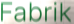
Fabrik